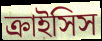
ক্রাইসিস